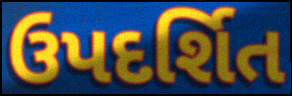
ઉપદર્શિત